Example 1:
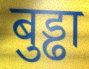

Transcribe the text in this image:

बुड्ढा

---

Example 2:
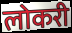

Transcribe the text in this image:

लोकरी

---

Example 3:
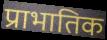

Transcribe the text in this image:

प्राभातिक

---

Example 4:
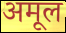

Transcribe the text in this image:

अमूल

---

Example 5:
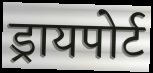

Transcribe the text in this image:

ड्रायपोर्ट